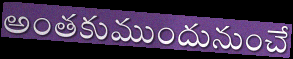
అంతకుముందునుంచే